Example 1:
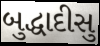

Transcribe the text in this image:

બુદ્ધાદીસુ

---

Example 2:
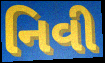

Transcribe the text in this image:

નિવી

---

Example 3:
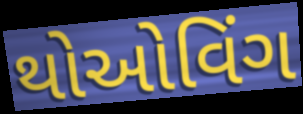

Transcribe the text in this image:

થોઓવિંગ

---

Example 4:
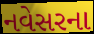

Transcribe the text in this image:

નવેસરના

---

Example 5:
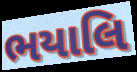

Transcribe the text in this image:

ભયાલિ